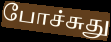
போச்சுது